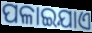
ପଳାଇଯାଏ